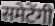
समेटेंगी